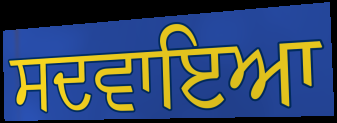
ਸਦਵਾਇਆ